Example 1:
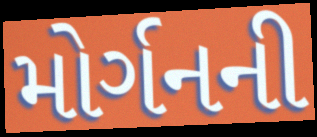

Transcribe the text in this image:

મોર્ગનની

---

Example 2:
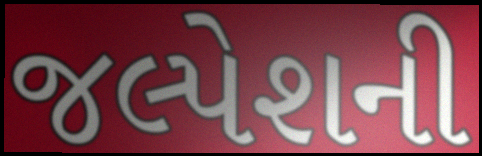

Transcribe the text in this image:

જલ્પેશની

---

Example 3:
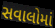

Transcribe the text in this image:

સવાલોમાં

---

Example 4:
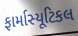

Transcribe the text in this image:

ફાર્માસ્યૂટિકલ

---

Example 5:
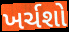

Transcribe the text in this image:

ખર્ચશો